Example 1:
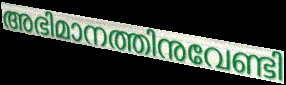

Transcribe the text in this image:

അഭിമാനത്തിനുവേണ്ടി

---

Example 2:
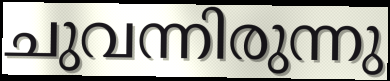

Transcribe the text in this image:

ചുവന്നിരുന്നു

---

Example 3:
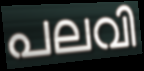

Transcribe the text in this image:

പലവി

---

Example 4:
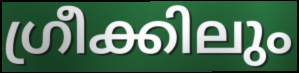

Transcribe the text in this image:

ഗ്രീക്കിലും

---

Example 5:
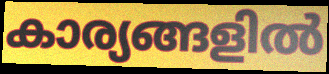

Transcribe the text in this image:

കാര്യങ്ങളിൽ